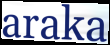
araka